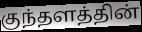
குந்தளத்தின்